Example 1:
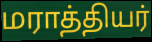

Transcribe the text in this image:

மராத்தியர்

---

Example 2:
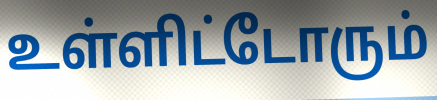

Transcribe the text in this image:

உள்ளிட்டோரும்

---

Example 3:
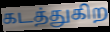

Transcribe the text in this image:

கடத்துகிற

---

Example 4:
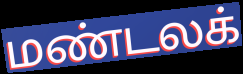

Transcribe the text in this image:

மண்டலக்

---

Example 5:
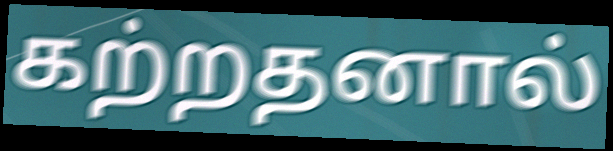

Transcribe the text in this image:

கற்றதனால்